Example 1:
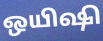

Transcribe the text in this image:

ஒயிஷி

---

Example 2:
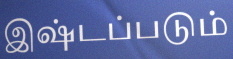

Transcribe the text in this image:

இஷ்டப்படும்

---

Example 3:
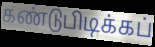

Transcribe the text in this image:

கண்டுபிடிக்கப்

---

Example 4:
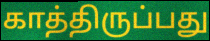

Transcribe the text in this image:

காத்திருப்பது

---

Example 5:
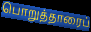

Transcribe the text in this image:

பொறுத்தாரைப்